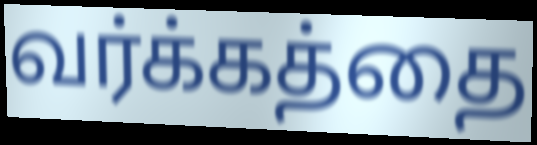
வர்க்கத்தை